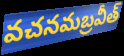
వచనమబ్రవీత్